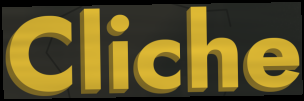
Cliche